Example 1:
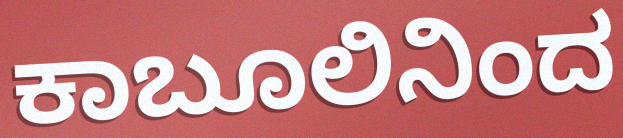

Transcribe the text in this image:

ಕಾಬೂಲಿನಿಂದ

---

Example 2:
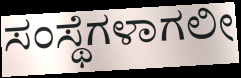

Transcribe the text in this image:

ಸಂಸ್ಥೆಗಳಾಗಲೀ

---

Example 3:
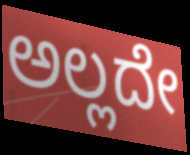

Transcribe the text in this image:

ಅಲ್ಲದೇ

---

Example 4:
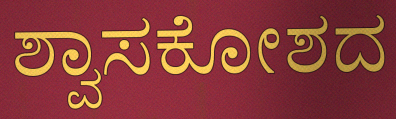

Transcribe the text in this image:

ಶ್ವಾಸಕೋಶದ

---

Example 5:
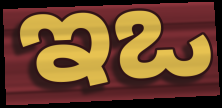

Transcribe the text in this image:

ಇಒ